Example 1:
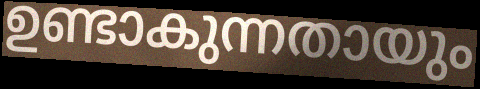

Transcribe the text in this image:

ഉണ്ടാകുന്നതായും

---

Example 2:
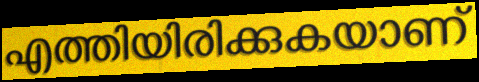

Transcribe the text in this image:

എത്തിയിരിക്കുകയാണ്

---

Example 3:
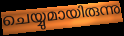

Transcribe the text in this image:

ചെയ്യുമായിരുന്നു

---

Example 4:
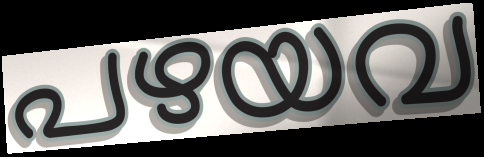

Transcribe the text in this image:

പഴയവ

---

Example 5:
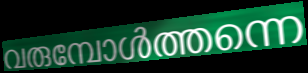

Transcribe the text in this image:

വരുമ്പോൾത്തന്നെ